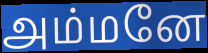
அம்மனே